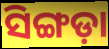
ସିଙ୍ଗଡ଼ା